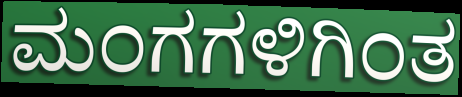
ಮಂಗಗಳಿಗಿಂತ